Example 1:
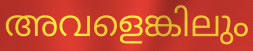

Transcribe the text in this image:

അവളെങ്കിലും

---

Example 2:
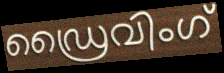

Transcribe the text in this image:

ഡ്രൈവിംഗ്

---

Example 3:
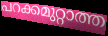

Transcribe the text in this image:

പറക്കമുറ്റാത്ത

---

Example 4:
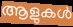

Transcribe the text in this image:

ആളുകൾ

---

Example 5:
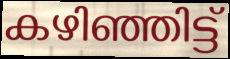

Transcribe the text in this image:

കഴിഞ്ഞിട്ട്